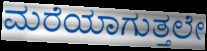
ಮರೆಯಾಗುತ್ತಲೇ